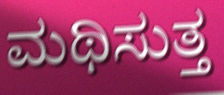
ಮಥಿಸುತ್ತ